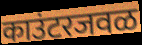
काउंटरजवळ